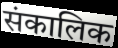
संकालिक